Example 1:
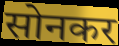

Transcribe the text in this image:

सोनकर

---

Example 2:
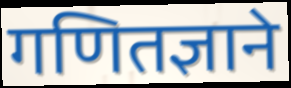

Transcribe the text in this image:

गणितज्ञाने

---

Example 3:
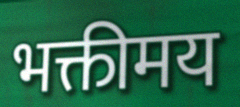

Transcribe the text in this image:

भक्तीमय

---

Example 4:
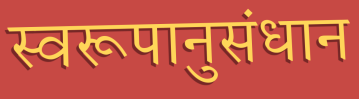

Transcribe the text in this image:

स्वरूपानुसंधान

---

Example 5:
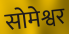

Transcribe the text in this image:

सोमेश्वर